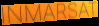
INMARSAT